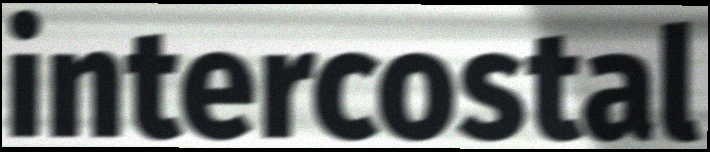
intercostal